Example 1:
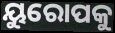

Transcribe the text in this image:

ୟୁରୋପକୁ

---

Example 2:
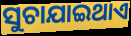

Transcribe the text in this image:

ସୁଚାଯାଇଥାଏ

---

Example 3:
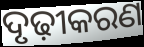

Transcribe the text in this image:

ଦୃଢ଼ୀକରଣ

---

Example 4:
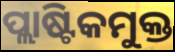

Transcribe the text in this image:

ପ୍ଲାଷ୍ଟିକମୁକ୍ତ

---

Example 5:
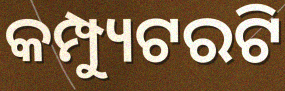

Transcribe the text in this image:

କମ୍ପ୍ୟୁଟରଟି